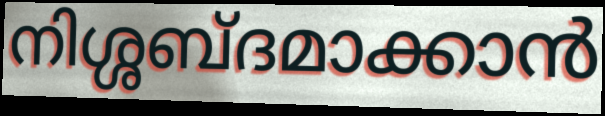
നിശ്ശബ്ദമാക്കാൻ